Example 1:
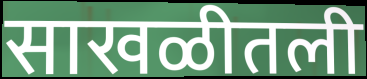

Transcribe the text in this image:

साखळीतली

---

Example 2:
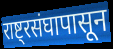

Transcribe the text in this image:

राष्ट्रसंघापासून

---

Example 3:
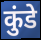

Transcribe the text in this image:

कुंडे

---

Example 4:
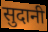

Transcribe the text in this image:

सुदानी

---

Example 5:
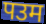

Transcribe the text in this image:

पउम